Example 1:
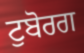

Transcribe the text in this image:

ਟੁਬੋਰਗ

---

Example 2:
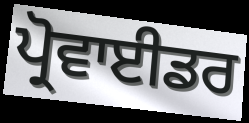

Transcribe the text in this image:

ਪ੍ਰੋਵਾਈਡਰ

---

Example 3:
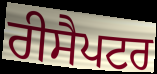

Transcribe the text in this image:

ਰੀਸੈਪਟਰ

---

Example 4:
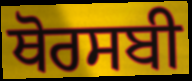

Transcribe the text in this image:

ਥੋਰਸਬੀ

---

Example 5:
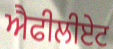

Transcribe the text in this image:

ਐਫੀਲੀਏਟ